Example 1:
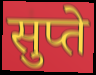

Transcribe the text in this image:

सुप्ते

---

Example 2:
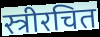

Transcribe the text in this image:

स्त्रीरचित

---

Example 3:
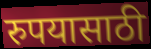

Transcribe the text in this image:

रुपयासाठी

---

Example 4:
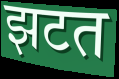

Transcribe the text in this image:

झटत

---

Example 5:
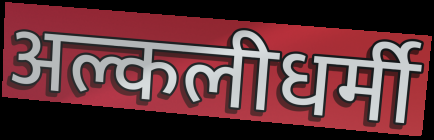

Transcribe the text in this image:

अल्कलीधर्मी